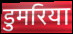
डुमरिया